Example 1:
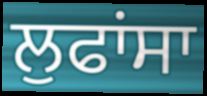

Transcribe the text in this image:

ਲੁਫਾਂਸਾ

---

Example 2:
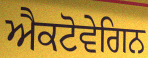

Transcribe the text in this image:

ਐਕਟੋਵੇਗਿਨ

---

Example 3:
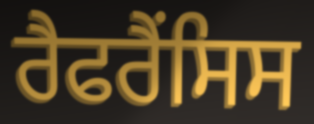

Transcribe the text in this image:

ਰੈਫਰੈਂਸਿਸ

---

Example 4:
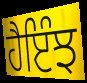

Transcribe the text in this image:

ਹੈਇੰਝ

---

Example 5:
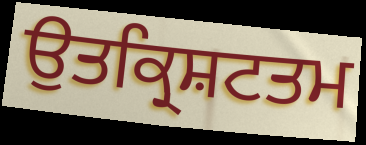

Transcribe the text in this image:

ਉਤਕ੍ਰਿਸ਼ਟਤਮ